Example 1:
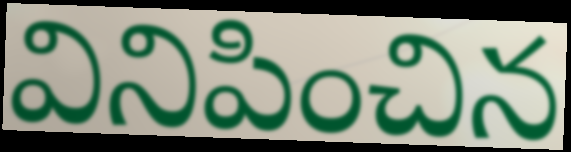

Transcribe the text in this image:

వినిపించిన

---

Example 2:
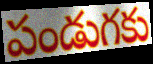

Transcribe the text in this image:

పండుగకు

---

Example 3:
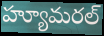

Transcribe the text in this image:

హ్యూమరల్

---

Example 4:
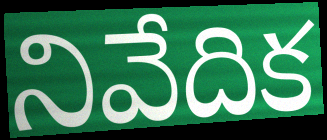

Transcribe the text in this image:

నివేదిక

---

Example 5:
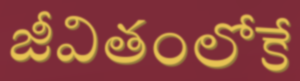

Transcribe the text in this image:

జీవితంలోకే